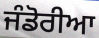
ਜੰਡੋਰੀਆ